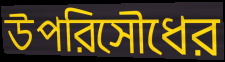
উপরিসৌধের